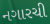
નગારચી